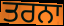
ਤਰਨਾ